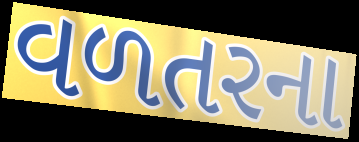
વળતરના